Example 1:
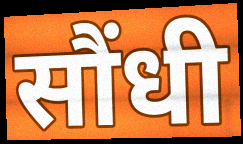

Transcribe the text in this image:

सौंधी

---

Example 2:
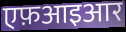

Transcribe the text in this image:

एफ़आइआर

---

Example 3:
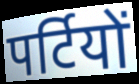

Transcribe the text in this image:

पर्टियों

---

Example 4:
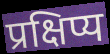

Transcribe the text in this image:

प्रक्षिप्य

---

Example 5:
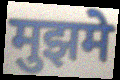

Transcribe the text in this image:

मुझमे